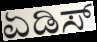
ಏಡಿಸ್